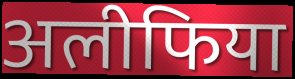
अलीफिया